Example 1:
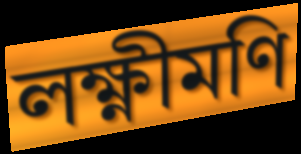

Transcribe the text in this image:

লক্ষ্ণীমণি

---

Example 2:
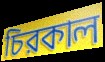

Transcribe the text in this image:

চিরকাল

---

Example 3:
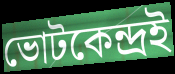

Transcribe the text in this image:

ভোটকেন্দ্রই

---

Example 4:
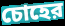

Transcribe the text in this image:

চোহের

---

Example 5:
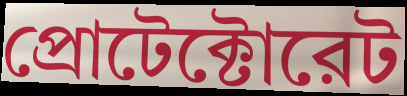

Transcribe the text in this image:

প্রোটেক্টোরেট